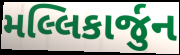
મલ્લિકાર્જુન